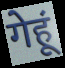
गेहूं